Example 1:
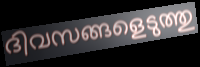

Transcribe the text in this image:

ദിവസങ്ങളെടുത്തു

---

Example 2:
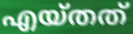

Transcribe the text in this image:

എയ്തത്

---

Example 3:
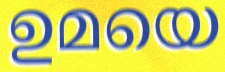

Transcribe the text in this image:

ഉമയെ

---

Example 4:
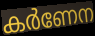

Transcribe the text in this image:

കർണേന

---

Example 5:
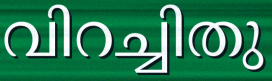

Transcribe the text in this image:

വിറച്ചിതു